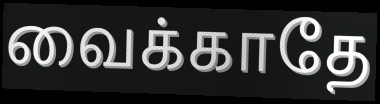
வைக்காதே